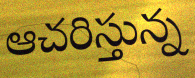
ఆచరిస్తున్న